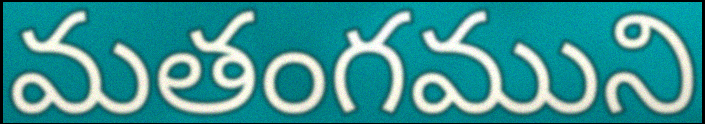
మతంగముని